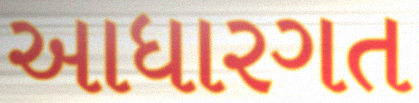
આધારગત